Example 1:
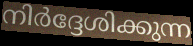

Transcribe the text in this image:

നിർദ്ദേശിക്കുന്ന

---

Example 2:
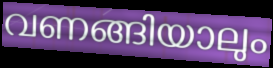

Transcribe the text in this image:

വണങ്ങിയാലും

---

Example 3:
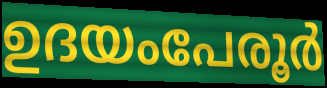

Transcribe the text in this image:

ഉദയംപേരൂർ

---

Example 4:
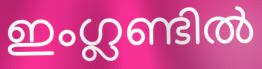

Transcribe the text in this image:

ഇംഗ്ലണ്ടിൽ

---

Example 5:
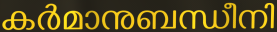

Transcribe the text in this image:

കർമാനുബന്ധീനി